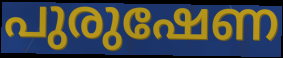
പുരുഷേണ